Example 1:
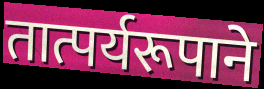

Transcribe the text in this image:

तात्पर्यरूपाने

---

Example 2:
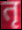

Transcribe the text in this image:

तृ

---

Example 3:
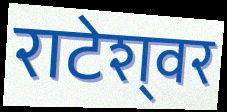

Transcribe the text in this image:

राटेश्वर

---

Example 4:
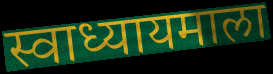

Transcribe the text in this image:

स्वाध्यायमाला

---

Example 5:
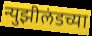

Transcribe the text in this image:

न्युझीलंडच्या